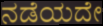
ನಡೆಯದೇ